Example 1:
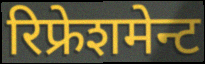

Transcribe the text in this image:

रिफ्रेशमेन्ट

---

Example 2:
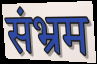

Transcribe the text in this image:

संभ्रम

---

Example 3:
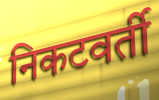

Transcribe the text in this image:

निकटवर्ती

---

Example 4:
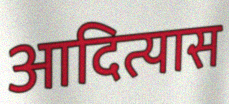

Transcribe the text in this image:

आदित्यास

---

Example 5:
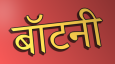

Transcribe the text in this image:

बॉटनी